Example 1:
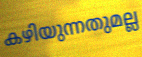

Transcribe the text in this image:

കഴിയുന്നതുമല്ല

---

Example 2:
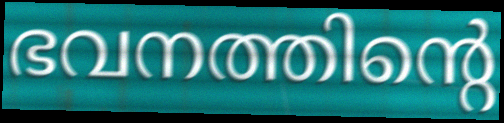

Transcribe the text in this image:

ഭവനത്തിന്റെ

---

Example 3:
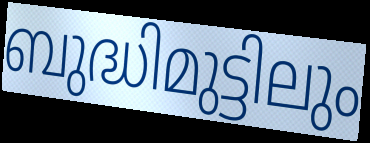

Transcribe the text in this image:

ബുദ്ധിമുട്ടിലും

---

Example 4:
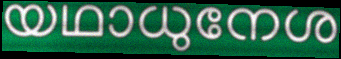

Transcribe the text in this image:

യഥാധുനേശ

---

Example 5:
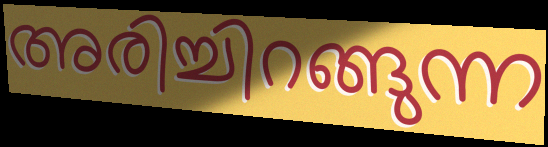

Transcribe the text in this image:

അരിച്ചിറങ്ങുന്ന